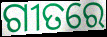
ଗୀତରେ